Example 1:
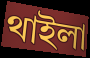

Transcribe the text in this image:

থাইলা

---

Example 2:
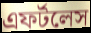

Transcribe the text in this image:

এফর্টলেস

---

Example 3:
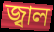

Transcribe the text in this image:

জ্বাল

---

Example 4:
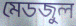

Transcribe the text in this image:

মেডজুল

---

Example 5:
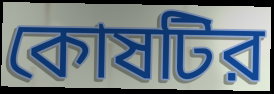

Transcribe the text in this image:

কোষটির